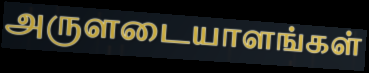
அருளடையாளங்கள்